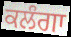
ਕਲੰਗਾ